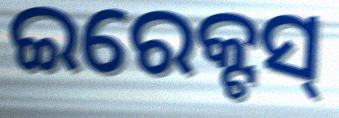
ଇରେକ୍ଟସ୍